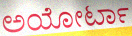
ಅಯೋರ್ಟಾ